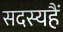
सदस्यहैं